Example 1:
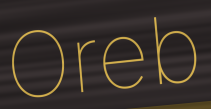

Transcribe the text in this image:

Oreb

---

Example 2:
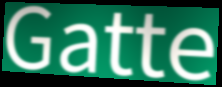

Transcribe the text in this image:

Gatte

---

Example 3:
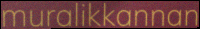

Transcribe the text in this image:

muralikkannan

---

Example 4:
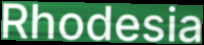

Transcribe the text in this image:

Rhodesia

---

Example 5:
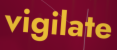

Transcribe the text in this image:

vigilate